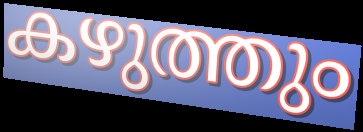
കഴുത്തും